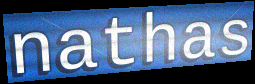
nathas